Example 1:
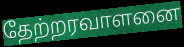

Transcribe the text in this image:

தேற்றரவாளனை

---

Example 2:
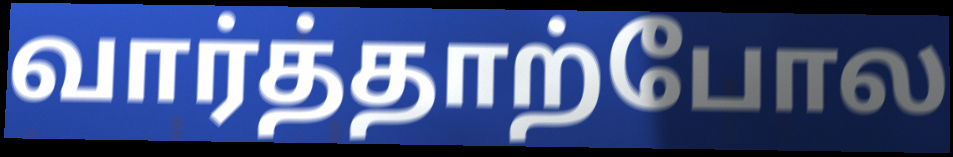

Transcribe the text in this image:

வார்த்தாற்போல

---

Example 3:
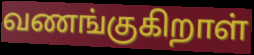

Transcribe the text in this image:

வணங்குகிறாள்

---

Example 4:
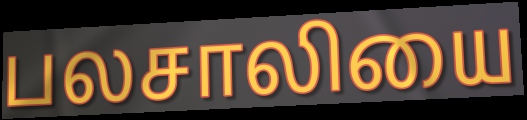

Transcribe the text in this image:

பலசாலியை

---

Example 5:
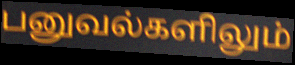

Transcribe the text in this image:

பனுவல்களிலும்